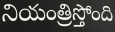
నియంత్రిస్తోంది